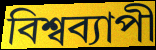
বিশ্বব্যাপী